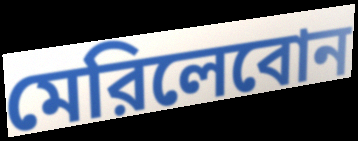
মেরিলেবোন